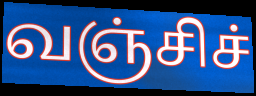
வஞ்சிச்